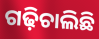
ଗଢ଼ିଚାଲିଛି